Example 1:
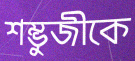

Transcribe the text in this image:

শম্ভুজীকে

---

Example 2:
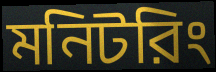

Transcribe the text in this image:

মনিটরিং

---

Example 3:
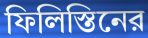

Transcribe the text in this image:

ফিলিস্তিনের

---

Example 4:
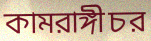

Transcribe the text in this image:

কামরাঙ্গীচর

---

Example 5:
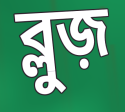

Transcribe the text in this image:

ব্লুজ়